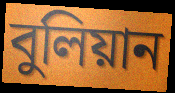
বুলিয়ান